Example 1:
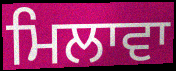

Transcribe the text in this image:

ਮਿਲਾਵਾ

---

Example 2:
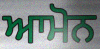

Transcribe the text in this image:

ਆਮੋਨ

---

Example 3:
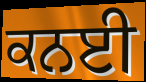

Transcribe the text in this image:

ਕਨਈ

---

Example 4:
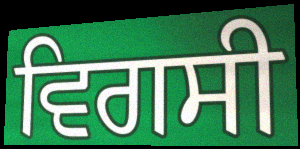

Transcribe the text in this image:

ਵਿਗਸੀ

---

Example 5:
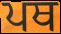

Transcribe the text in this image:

ਪਥ